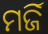
ମର୍ଜି